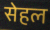
सेहल